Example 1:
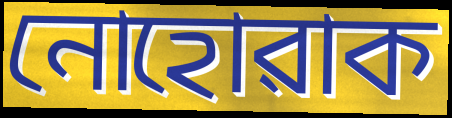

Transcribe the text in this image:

নোহোৱাক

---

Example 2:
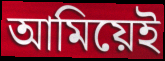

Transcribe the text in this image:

আমিয়েই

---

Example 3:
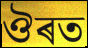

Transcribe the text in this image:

ঔৰত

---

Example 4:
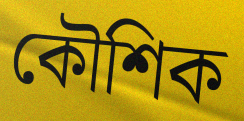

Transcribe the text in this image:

কৌশিক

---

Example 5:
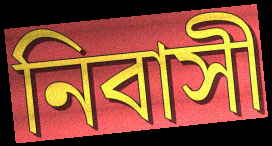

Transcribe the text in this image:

নিবাসী